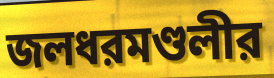
জলধরমণ্ডলীর